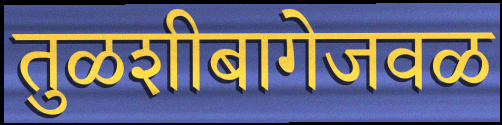
तुळशीबागेजवळ